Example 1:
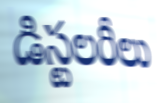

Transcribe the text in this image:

డిస్టలరీలు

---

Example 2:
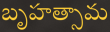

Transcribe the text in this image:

బృహత్సామ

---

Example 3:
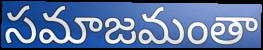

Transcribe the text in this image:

సమాజమంతా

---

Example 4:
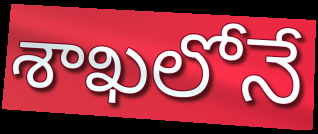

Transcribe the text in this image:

శాఖలోనే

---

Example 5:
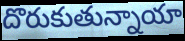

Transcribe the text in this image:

దొరుకుతున్నాయా